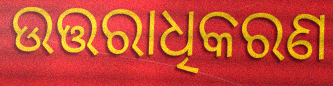
ଉତ୍ତରାଧିକରଣ